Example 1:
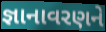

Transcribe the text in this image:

જ્ઞાનાવરણને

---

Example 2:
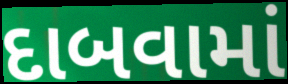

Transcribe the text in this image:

દાબવામાં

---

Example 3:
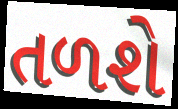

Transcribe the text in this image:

તળશે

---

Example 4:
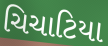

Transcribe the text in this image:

ચિચાટિયા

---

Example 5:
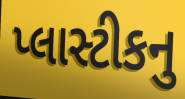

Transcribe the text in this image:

પ્લાસ્ટીકનુ